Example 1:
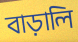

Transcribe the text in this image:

বাড়ালি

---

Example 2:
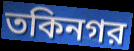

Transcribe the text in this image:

তকিনগর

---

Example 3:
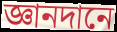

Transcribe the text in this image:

জ্ঞানদানে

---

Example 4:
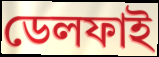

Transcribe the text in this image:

ডেলফাই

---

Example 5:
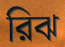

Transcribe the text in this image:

রিঝ